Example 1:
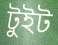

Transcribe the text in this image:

টুইট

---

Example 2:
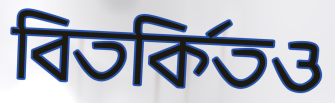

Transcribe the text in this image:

বিতর্কিতও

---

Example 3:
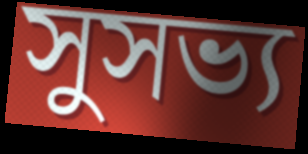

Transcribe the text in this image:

সুসভ্য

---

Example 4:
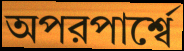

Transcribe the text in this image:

অপরপার্শ্বে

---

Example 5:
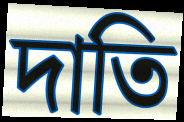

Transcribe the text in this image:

দাতি